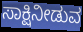
ಸಾಕ್ಷಿನೀಡುವ